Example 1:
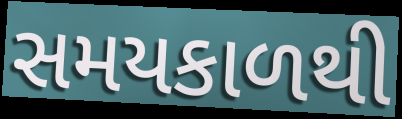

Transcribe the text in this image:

સમયકાળથી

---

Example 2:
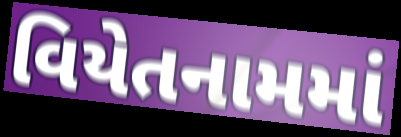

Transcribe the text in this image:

વિયેતનામમાં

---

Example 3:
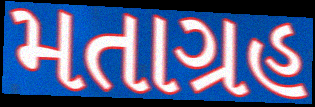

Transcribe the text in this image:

મતાગ્રહ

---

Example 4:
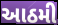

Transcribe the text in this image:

આઠમી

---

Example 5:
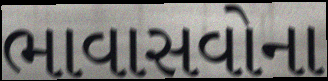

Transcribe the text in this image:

ભાવાસવોના